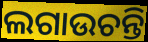
ଲଗାଉଚନ୍ତି